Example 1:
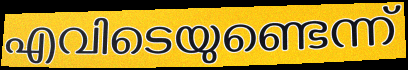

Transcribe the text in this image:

എവിടെയുണ്ടെന്ന്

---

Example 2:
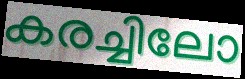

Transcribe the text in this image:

കരച്ചിലോ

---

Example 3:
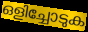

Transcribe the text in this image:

ഒളിച്ചോടുക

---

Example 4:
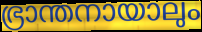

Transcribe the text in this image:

ഭ്രാന്തനായാലും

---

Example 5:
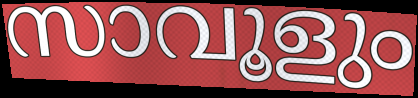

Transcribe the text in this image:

സാവൂളും